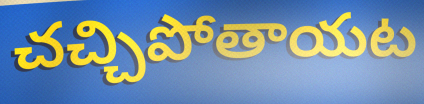
చచ్చిపోతాయట